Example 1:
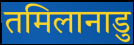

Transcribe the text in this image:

तमिलानाडु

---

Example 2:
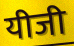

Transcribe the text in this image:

यीजी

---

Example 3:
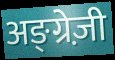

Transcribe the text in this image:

अङ्ग्रेज़ी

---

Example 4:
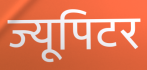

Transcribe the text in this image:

ज्यूपिटर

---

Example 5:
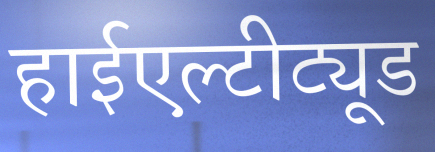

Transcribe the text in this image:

हाईएल्टीट्यूड